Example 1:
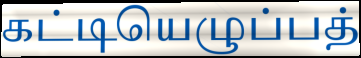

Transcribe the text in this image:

கட்டியெழுப்பத்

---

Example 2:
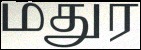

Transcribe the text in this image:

மதுர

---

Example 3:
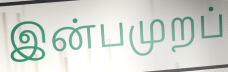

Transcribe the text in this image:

இன்பமுறப்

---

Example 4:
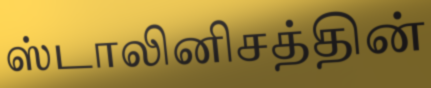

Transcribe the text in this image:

ஸ்டாலினிசத்தின்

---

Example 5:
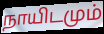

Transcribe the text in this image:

நாயிடமும்